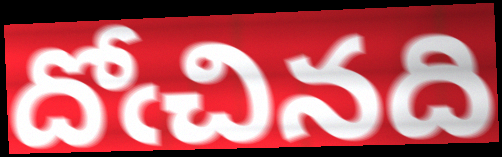
దోఁచినది